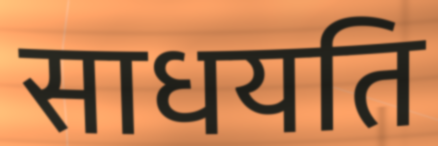
साधयति